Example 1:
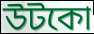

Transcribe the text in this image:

উটকো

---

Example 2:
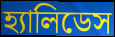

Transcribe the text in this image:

হ্যালিডেস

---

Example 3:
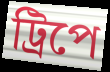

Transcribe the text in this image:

ট্রিপে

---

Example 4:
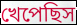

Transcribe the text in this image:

খেপেছিস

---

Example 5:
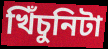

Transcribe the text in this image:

খিঁচুনিটা